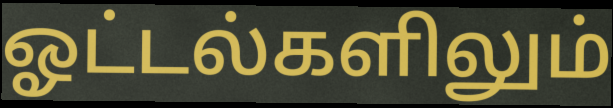
ஓட்டல்களிலும்